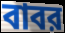
বাবর